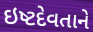
ઇષ્ટદેવતાને